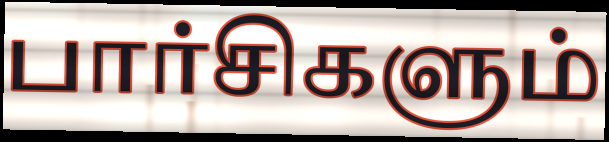
பார்சிகளும்